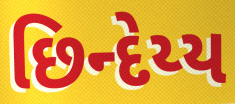
છિન્દેય્ય